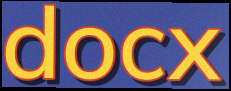
docx